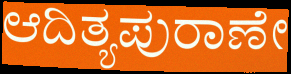
ಆದಿತ್ಯಪುರಾಣೇ